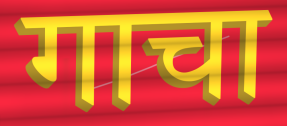
गाचा